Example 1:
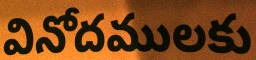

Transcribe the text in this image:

వినోదములకు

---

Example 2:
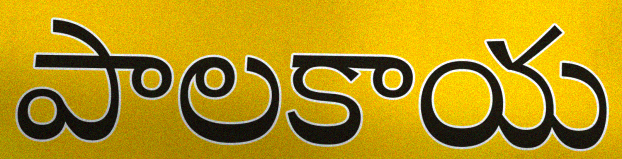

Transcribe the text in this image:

పాలకాయ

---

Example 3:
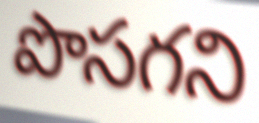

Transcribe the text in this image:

పొసగని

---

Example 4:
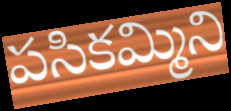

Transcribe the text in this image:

పసికమ్మిని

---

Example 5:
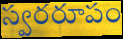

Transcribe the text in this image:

స్వరరూపం